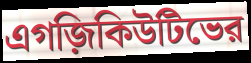
এগজ়িকিউটিভের